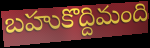
బహుకొద్దిమంది